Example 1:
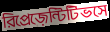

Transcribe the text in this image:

রিপ্রেজ়েন্টিটিভসে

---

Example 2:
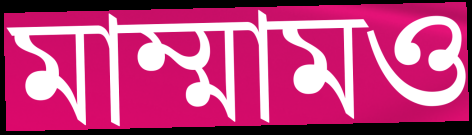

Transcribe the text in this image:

মাম্মামও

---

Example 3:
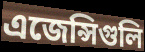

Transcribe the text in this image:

এজেন্সিগুলি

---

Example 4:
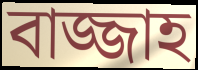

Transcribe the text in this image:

বাজ্জাহ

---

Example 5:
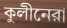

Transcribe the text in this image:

কুলীনেরা